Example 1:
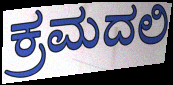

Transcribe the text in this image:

ಕ್ರಮದಲಿ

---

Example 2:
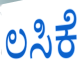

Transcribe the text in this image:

ಲಸಿಕೆ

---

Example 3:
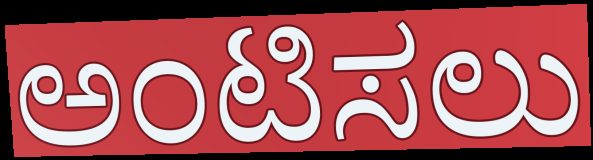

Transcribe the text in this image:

ಅಂಟಿಸಲು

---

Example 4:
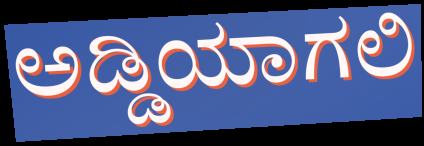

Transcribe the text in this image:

ಅಡ್ಡಿಯಾಗಲಿ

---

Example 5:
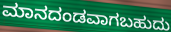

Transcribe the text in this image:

ಮಾನದಂಡವಾಗಬಹುದು